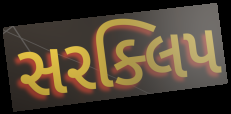
સરક્લિપ